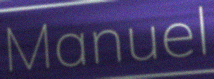
Manuel